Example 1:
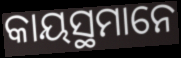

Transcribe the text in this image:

କାୟସ୍ଥମାନେ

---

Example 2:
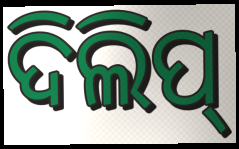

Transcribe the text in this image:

ଦିଲିପ୍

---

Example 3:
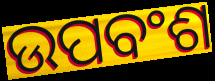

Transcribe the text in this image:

ଉପବଂଶ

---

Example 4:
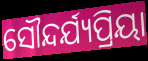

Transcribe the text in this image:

ସୌନ୍ଦର୍ଯ୍ୟପ୍ରିୟା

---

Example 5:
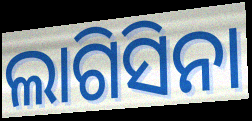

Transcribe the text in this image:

ଲାଗିସିନା